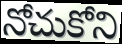
నోచుకోని